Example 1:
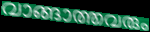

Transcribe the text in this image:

വാങ്ങാത്തവരും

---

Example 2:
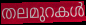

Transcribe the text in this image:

തലമുറകൾ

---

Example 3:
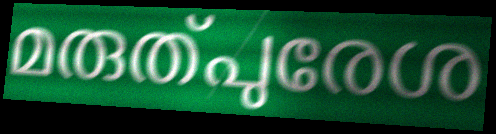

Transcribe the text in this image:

മരുത്പുരേശ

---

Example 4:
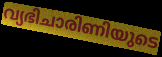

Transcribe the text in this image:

വ്യഭിചാരിണിയുടെ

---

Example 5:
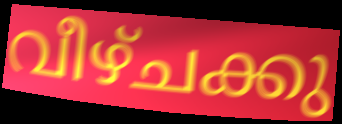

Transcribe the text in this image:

വീഴ്ചക്കു